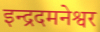
इन्द्रदमनेश्वर